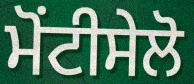
ਮੋਂਟੀਸੇਲੋ